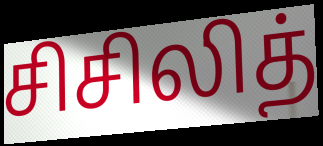
சிசிலித்